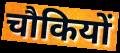
चौकियों